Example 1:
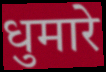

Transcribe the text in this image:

धुमारे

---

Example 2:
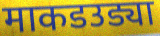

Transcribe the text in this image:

माकडउड्या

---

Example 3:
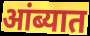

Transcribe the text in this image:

आंब्यात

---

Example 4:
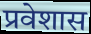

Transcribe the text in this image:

प्रवेशास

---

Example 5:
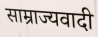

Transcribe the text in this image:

साम्राज्यवादी